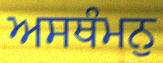
ਅਸਥੰਮਨੁ